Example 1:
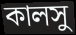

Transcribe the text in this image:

কালসু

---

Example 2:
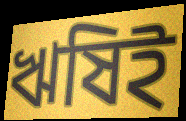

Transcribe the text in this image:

ঋষিই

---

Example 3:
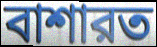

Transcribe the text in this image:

বাশারত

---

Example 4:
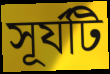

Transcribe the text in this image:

সূর্যটি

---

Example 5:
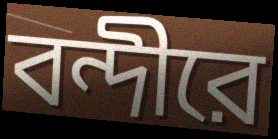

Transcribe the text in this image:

বন্দীরে